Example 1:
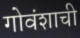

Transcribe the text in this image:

गोवंशाची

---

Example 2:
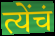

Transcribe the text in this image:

त्येंचं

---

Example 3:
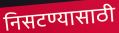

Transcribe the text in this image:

निसटण्यासाठी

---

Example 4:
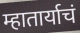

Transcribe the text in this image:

म्हातार्याचं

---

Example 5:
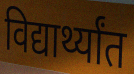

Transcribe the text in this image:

विद्यार्थ्यांत